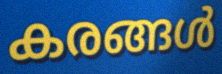
കരങ്ങൾ